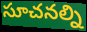
సూచనల్ని